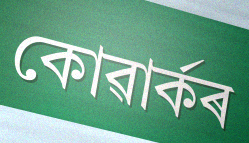
কোৱাৰ্কৰ